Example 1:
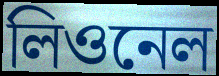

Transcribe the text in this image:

লিওনেল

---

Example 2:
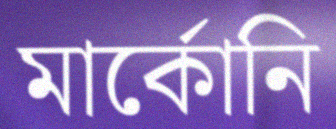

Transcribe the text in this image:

মার্কোনি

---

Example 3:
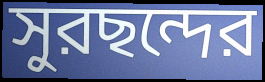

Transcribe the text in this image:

সুরছন্দের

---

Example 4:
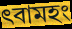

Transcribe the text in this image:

ৎবামহং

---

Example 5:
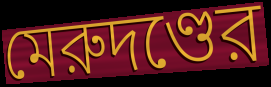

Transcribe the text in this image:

মেরুদণ্ডের